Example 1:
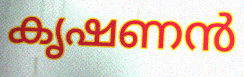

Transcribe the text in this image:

കൃഷണൻ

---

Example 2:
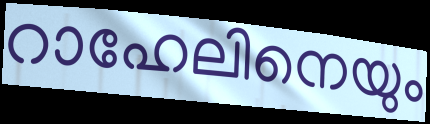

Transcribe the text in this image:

റാഹേലിനെയും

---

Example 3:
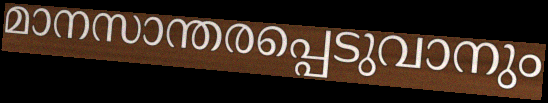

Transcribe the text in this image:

മാനസാന്തരപ്പെടുവാനും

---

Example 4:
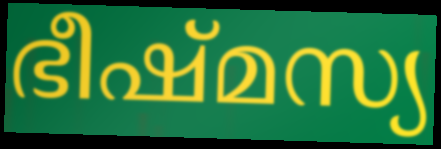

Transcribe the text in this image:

ഭീഷ്മസ്യ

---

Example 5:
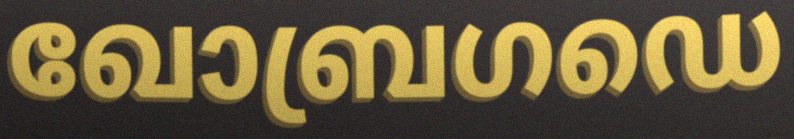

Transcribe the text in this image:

ഖോബ്രഗഡെ